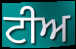
ਟੀਅ